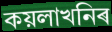
কয়লাখনিৰ